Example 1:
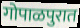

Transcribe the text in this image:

गोपाळपुरात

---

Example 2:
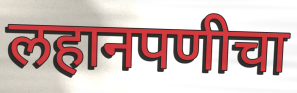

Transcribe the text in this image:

लहानपणीचा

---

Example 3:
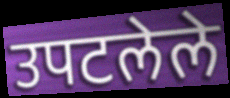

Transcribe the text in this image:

उपटलेले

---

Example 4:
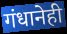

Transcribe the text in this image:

गंधानेही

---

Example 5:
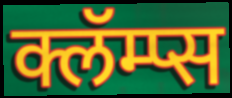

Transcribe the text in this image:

क्लॅम्प्स